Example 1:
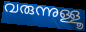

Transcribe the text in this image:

വരുന്നുള്ളൂ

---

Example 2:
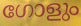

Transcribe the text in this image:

ഗോളും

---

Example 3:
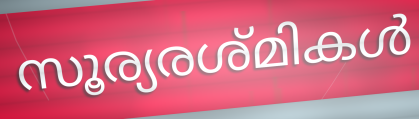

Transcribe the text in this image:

സൂര്യരശ്മികൾ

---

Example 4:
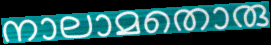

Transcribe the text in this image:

നാലാമതൊരു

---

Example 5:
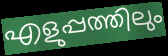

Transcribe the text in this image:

എളുപ്പത്തിലും